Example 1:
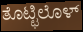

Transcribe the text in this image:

ತೊಟ್ಟಿಲೊಳ್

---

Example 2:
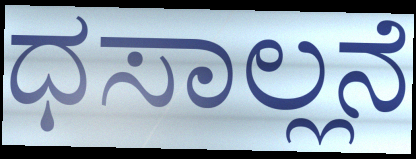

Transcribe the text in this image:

ಧಸಾಲ್ಲನೆ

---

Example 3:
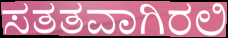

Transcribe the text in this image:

ಸತತವಾಗಿರಲಿ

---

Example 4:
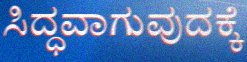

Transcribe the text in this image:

ಸಿದ್ಧವಾಗುವುದಕ್ಕೆ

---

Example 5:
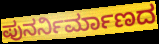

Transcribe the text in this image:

ಪುನರ್ನಿರ್ಮಾಣದ